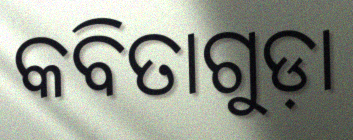
କବିତାଗୁଡ଼ା